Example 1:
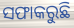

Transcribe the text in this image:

ସଫାକରୁଛି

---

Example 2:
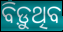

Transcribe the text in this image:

ବିଡ଼ୁଥିବ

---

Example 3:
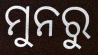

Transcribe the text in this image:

ମୁନରୁ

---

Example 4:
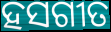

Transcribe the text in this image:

ହସଗୀତ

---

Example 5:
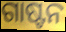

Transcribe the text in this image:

ଗାଷ୍ଟନ